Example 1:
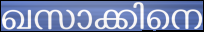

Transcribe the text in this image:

ഖസാക്കിനെ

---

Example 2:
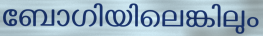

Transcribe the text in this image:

ബോഗിയിലെങ്കിലും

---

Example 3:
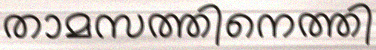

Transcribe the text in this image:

താമസത്തിനെത്തി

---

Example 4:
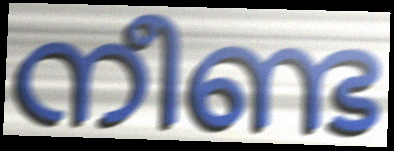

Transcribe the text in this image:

നീണ്ട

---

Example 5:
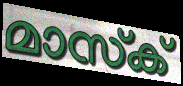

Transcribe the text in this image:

മാസ്‌ക്